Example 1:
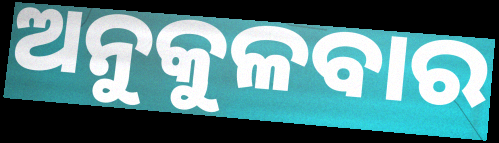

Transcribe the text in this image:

ଅନୁକୁଳବାର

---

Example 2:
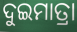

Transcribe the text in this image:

ଦୁଇମାତ୍ରା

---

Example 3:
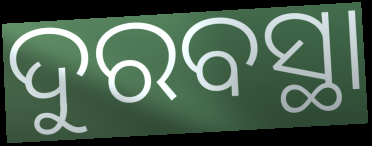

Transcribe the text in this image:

ଦୁରବସ୍ଥା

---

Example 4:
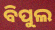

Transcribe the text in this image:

ବିପୁଲ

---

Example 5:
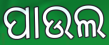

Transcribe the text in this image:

ପାଉଲ